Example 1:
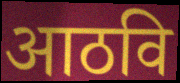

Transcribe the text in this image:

आठवि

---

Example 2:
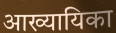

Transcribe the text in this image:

आख्यायिका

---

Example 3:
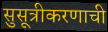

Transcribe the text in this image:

सुसूत्रीकरणाची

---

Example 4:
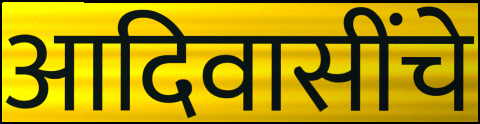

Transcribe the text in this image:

आदिवासींचे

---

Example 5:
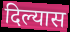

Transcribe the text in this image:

दिल्यास